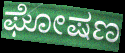
ಘೋಷಣ